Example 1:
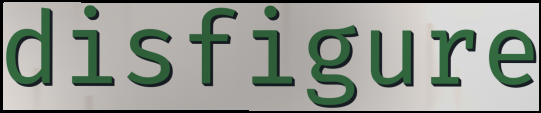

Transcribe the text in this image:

disfigure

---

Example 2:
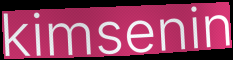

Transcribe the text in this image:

kimsenin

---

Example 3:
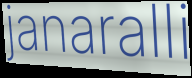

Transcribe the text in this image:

janaralli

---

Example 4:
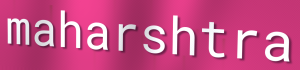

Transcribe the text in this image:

maharshtra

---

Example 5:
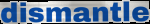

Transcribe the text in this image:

dismantle